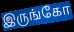
இருங்கோ